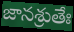
జానశ్రుతేః